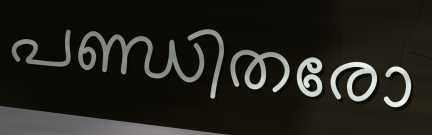
പണ്ഡിതരോ